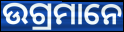
ଉଗ୍ରମାନେ